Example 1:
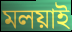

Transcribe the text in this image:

মলয়াই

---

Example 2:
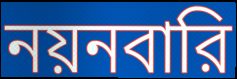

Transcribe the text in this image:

নয়নবারি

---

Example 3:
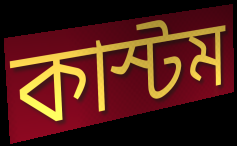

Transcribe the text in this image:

কাস্টম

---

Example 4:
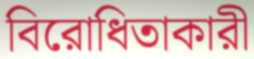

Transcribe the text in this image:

বিরোধিতাকারী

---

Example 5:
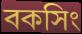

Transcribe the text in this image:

বকসিং